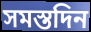
সমস্তদিন